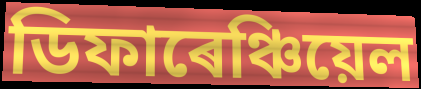
ডিফাৰেঞ্চিয়েল